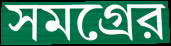
সমগ্রের